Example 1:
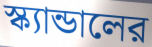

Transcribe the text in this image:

স্ক্যান্ডালের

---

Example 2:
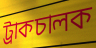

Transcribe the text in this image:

ট্রাকচালক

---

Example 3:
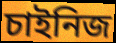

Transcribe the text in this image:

চাইনিজ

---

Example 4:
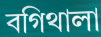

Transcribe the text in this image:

বগিথালা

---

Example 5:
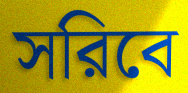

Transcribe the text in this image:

সরিবে